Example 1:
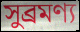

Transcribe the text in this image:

সুব্রমণ্য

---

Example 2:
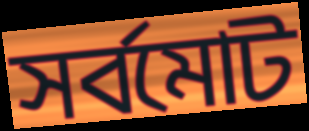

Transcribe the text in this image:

সর্বমোট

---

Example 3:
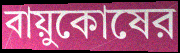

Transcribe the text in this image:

বায়ুকোষের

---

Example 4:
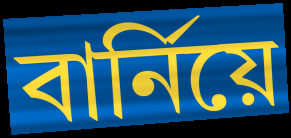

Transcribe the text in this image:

বার্নিয়ে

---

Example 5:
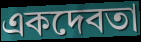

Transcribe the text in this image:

একদেবতা